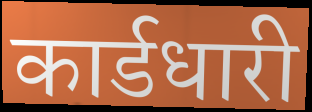
कार्डधारी